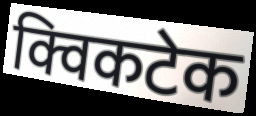
क्विकटेक